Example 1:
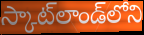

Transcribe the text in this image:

స్కాట్‌లాండ్‌లోని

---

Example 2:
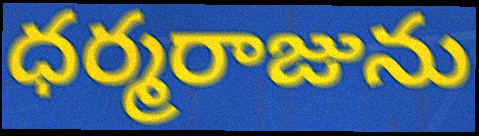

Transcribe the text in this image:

ధర్మరాజును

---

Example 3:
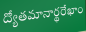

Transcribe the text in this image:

ద్యోతమానార్థరేఖాం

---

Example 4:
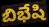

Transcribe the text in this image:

బిభేషి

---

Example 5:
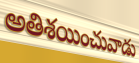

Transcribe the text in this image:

అతిశయించువాడు